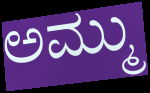
ಅಮ್ಮು